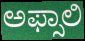
ಅಫ್ಸಾಲಿ